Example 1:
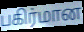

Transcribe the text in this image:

பகிர்மான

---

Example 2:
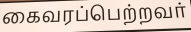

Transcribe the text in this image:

கைவரப்பெற்றவர்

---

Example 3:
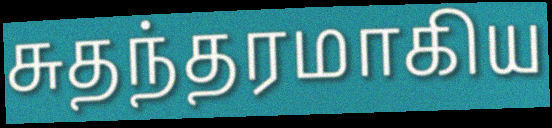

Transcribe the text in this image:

சுதந்தரமாகிய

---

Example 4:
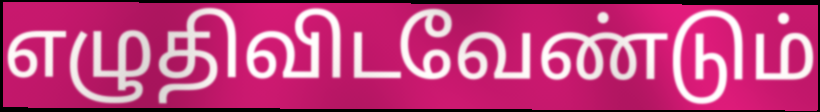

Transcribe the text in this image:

எழுதிவிடவேண்டும்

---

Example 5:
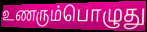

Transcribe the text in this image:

உணரும்பொழுது